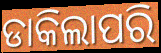
ଡାକିଲାପରି